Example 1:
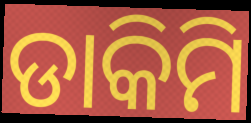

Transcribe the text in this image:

ଡାକିମି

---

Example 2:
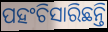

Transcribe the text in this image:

ପହଂଚିସାରିଛନ୍ତି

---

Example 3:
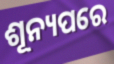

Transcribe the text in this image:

ଶୂନ୍ୟପରେ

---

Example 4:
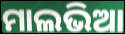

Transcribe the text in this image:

ମାଲଭିଆ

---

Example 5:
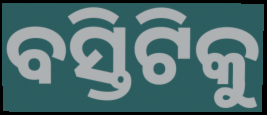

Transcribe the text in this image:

ବସ୍ତିଟିକୁ